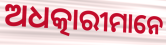
ଅଧତ୍କାରୀମାନେ